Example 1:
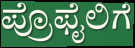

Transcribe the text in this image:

ಪ್ರೊಫೈಲಿಗೆ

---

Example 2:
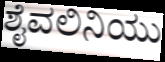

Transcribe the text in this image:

ಶೈವಲಿನಿಯು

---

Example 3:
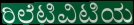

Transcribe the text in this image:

ರಿಲೆಟಿವಿಟಿಯ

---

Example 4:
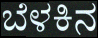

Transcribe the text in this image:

ಬೆಳಕಿನ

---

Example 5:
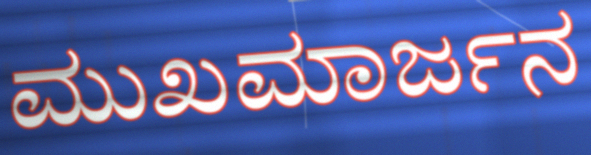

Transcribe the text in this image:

ಮುಖಮಾರ್ಜನ